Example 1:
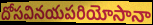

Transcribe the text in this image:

దోసవినయపరియోసానా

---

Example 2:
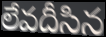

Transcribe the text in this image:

లేవదీసిన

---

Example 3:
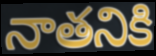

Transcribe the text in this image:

నాతనికి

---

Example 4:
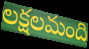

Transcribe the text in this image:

లక్షలమంది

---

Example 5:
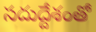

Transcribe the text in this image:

సదుద్దేశంతో